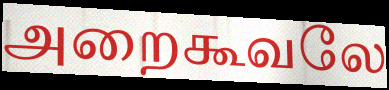
அறைகூவலே